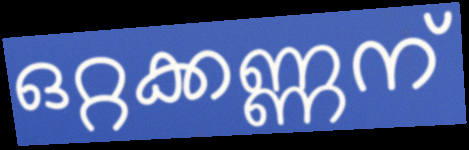
ഒറ്റക്കണ്ണന്